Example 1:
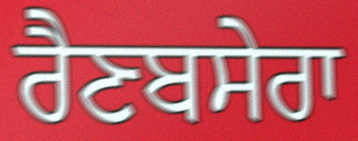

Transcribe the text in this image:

ਰੈਣਬਸੇਰਾ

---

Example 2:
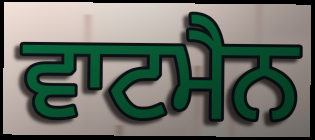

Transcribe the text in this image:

ਵਾਟਮੈਨ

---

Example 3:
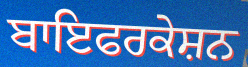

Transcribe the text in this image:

ਬਾਇਫਰਕੇਸ਼ਨ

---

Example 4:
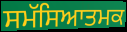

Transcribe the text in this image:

ਸਮੱਸਿਆਤਮਕ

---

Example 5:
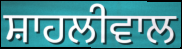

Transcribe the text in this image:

ਸ਼ਾਹਲੀਵਾਲ